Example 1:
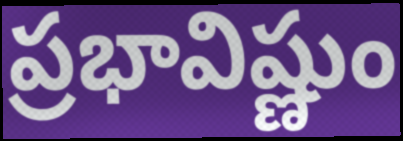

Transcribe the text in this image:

ప్రభావిష్ణుం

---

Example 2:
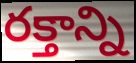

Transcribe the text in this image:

రక్తాన్ని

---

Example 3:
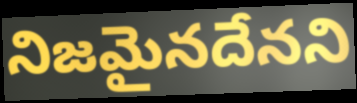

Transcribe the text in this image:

నిజమైనదేనని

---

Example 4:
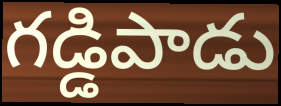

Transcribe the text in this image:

గడ్డిపాడు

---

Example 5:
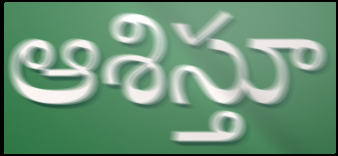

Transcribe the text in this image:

ఆశిస్తూ